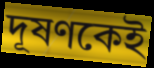
দূষণকেই